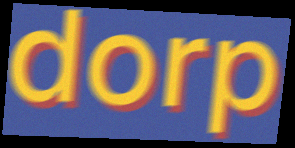
dorp